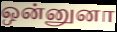
ஒன்னுனா